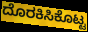
ದೊರಕಿಸಿಕೊಟ್ಟ